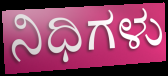
ನಿಧಿಗಳು